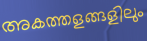
അകത്തളങ്ങളിലും